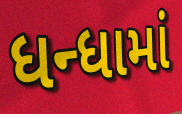
ધન્ધામાં